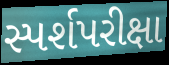
સ્પર્શપરીક્ષા